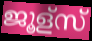
ജൂള്സ്